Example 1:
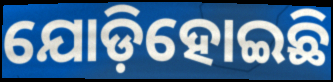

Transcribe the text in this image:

ଯୋଡ଼ିହୋଇଛି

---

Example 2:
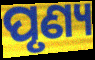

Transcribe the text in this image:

ପୃଣ୍ୟ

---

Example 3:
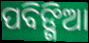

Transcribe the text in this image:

ପବିଙ୍ଗିଆ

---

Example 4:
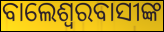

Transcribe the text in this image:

ବାଲେଶ୍ବରବାସୀଙ୍କ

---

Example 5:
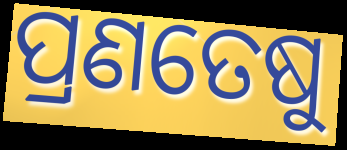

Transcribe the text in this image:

ପ୍ରଣତେଷୁ